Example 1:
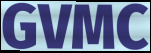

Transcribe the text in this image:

GVMC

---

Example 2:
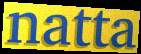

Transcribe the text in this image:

natta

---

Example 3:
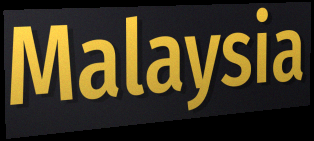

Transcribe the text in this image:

Malaysia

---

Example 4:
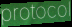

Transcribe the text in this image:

protocol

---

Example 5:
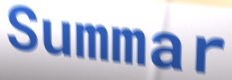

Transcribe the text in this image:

Summar